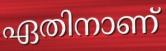
ഏതിനാണ്